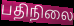
பதிநிலை